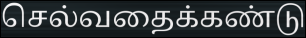
செல்வதைக்கண்டு